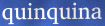
quinquina